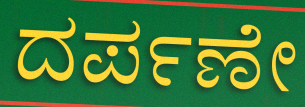
ದರ್ಪಣೇ